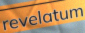
revelatum